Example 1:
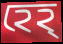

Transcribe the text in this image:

হেহ্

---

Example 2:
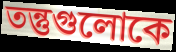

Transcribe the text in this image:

তন্তুগুলোকে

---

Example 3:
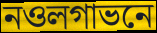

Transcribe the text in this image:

নওলগাভনে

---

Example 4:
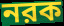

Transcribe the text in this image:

নরক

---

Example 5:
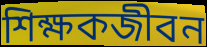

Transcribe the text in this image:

শিক্ষকজীবন